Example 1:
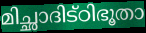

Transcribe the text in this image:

മിച്ഛാദിട്ഠിഭൂതാ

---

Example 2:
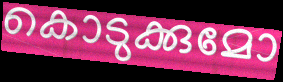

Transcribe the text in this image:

കൊടുക്കുമോ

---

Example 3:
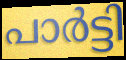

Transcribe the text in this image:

പാർട്ടി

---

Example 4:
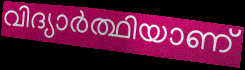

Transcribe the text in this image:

വിദ്യാർത്ഥിയാണ്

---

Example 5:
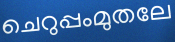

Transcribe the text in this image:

ചെറുപ്പംമുതലേ